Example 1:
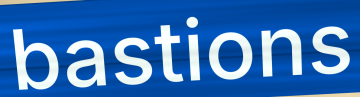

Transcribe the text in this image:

bastions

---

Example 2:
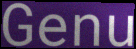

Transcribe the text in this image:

Genu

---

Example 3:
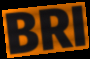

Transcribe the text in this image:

BRI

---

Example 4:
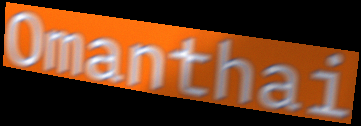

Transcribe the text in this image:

Omanthai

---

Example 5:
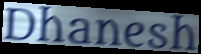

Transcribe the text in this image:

Dhanesh